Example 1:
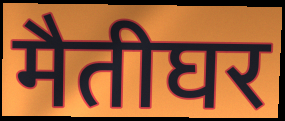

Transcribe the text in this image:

मैतीघर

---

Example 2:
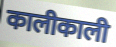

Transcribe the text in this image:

कालीकाली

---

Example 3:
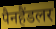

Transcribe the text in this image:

पैनहैंडलर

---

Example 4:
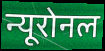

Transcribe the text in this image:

न्यूरोनल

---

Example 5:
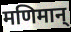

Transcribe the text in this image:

मणिमान्